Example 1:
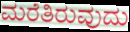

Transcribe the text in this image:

ಮರೆತಿರುವುದು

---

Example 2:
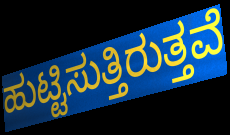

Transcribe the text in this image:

ಹುಟ್ಟಿಸುತ್ತಿರುತ್ತವೆ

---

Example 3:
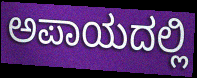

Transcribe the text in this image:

ಅಪಾಯದಲ್ಲಿ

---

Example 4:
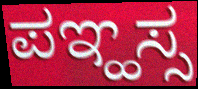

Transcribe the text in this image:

ಪಞ್ಹಸ್ಸ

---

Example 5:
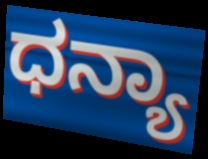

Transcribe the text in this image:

ಧನ್ಯಾ